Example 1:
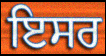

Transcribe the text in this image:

ਇਸਰ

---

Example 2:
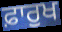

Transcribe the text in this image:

ਫ਼ਾਰੁਖ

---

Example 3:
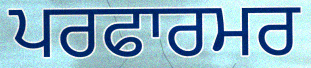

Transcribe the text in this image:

ਪਰਫਾਰਮਰ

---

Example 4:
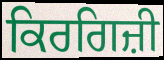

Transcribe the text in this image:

ਕਿਰਗਿਜ਼ੀ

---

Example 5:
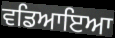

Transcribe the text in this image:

ਵਡਿਆਇਆ